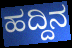
ಹದ್ದಿನ